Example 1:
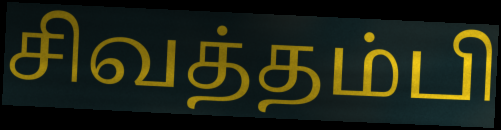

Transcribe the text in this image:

சிவத்தம்பி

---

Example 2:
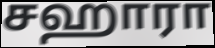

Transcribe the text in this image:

சஹாரா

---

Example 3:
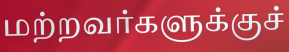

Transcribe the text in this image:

மற்றவர்களுக்குச்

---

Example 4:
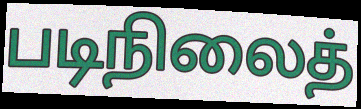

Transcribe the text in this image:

படிநிலைத்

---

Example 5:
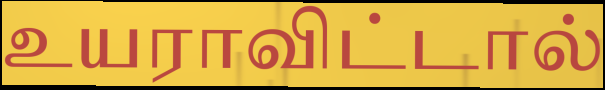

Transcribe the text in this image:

உயராவிட்டால்